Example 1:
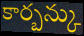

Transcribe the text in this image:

కార్బన్కు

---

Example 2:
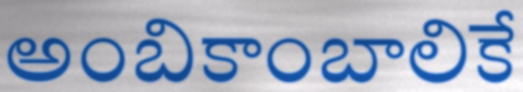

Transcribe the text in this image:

అంబికాంబాలికే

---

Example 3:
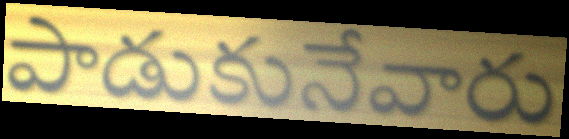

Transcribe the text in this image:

పాడుకునేవారు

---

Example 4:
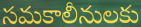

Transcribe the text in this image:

సమకాలీనులకు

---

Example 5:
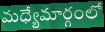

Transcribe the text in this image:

మధ్యేమార్గంలో